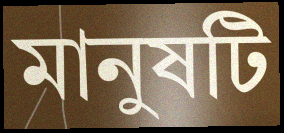
মানুষটি